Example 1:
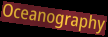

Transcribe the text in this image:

Oceanography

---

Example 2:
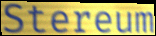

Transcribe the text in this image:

Stereum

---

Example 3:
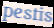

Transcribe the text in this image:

pestis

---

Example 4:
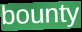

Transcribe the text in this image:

bounty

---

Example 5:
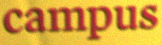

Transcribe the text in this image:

campus